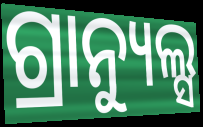
ଗ୍ରାନ୍ୟୁଲ୍ସ